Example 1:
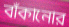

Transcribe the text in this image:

বাঁকানোর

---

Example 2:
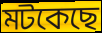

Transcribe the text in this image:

মটকেছে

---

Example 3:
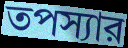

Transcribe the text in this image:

তপস্যার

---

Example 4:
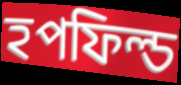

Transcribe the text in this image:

হপফিল্ড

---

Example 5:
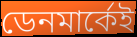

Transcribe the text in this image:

ডেনমার্কেই